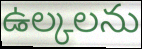
ఉల్కలను